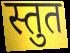
स्तुत